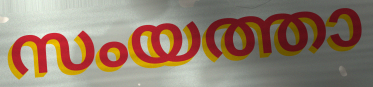
സംയത്താ